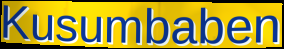
Kusumbaben